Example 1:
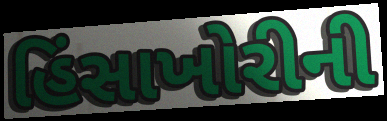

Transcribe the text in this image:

હિંસાખોરીની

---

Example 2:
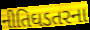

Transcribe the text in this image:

નીતિઘડતરના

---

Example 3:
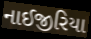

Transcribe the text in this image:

નાઈજીરિયા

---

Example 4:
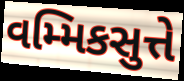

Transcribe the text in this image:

વમ્મિકસુત્તે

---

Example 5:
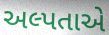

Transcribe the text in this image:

અલ્પતાએ